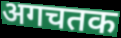
अगचतक